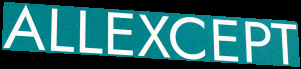
ALLEXCEPT